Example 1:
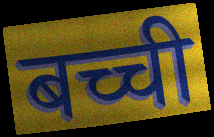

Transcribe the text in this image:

बच्ची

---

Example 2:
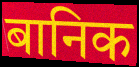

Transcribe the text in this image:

बानिक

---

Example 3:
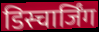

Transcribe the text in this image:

डिस्चार्जिंग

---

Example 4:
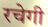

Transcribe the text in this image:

रचेगी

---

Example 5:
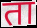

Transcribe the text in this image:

ता